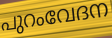
പുറംവേദന